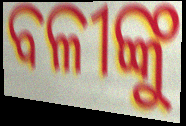
ବଳୀଙ୍କୁ